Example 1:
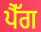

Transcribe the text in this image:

ਪੈੱਗ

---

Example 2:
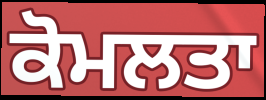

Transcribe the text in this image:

ਕੋਮਲਤਾ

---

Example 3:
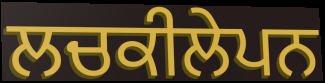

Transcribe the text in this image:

ਲਚਕੀਲੇਪਨ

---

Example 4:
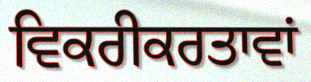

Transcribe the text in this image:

ਵਿਕਰੀਕਰਤਾਵਾਂ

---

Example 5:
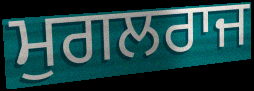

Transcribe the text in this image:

ਮੁਗਲਰਾਜ